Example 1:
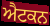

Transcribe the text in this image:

ਐਟਕਨ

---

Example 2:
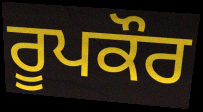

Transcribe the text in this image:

ਰੂਪਕੌਰ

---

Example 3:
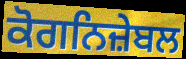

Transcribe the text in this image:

ਕੋਗਨਿਜ਼ੇਬਲ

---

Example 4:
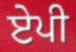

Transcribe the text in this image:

ਏਪੀ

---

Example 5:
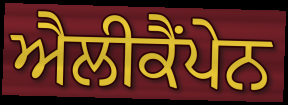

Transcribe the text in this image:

ਐਲੀਕੈਂਪੇਨ